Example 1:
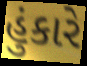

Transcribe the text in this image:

હુંકારે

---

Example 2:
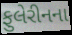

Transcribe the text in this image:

ફુલેરીનના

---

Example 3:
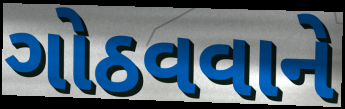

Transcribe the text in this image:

ગોઠવવાને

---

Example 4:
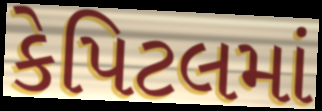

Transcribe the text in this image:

કેપિટલમાં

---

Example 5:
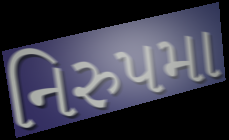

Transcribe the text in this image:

નિરુપમા